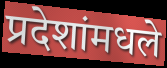
प्रदेशांमधले